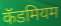
कॅडमियम